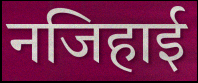
नजिहाई